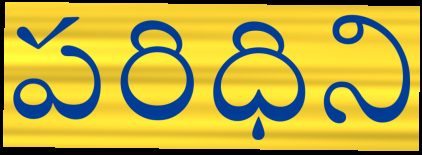
పరిధిని